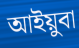
আইয়ুবা